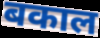
बकाल